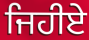
ਜਿਹੀਏ